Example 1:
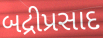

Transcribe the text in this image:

બદ્રીપ્રસાદ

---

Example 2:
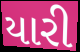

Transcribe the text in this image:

યારી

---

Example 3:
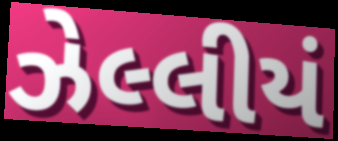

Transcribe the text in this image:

ઝેલ્લીયં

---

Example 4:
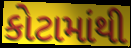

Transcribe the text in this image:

કોટામાંથી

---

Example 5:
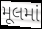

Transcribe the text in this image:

મૂલમાં